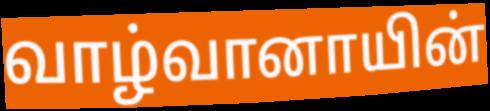
வாழ்வானாயின்